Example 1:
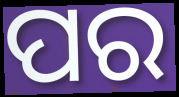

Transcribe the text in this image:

ପର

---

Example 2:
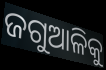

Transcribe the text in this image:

ଜଗୁଆଳିକୁ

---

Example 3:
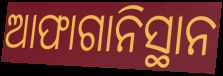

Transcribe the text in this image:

ଆଫାଗାନିସ୍ଥାନ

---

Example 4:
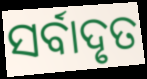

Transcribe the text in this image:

ସର୍ବାଦୃତ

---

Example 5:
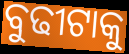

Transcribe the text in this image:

ବୁଢୀଟାକୁ